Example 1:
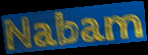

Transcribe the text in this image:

Nabam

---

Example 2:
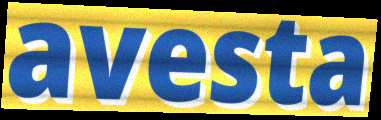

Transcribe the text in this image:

avesta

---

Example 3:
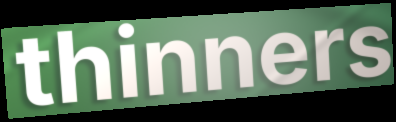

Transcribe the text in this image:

thinners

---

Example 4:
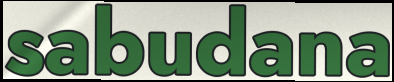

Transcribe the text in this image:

sabudana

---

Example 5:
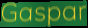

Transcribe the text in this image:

Gaspar